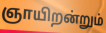
ஞாயிறன்றும்